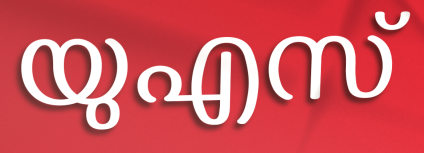
യുഎസ്